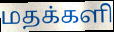
மதக்களி